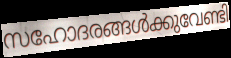
സഹോദരങ്ങൾക്കുവേണ്ടി